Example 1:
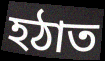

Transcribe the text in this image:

হঠাত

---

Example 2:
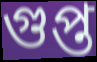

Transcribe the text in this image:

গুপ্ত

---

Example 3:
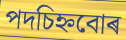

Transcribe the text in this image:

পদচিহ্নবোৰ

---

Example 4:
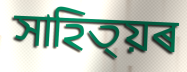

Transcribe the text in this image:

সাহিত্য়ৰ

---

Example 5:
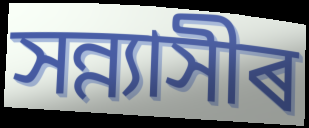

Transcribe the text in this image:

সন্ন্যাসীৰ